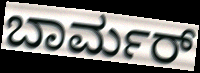
ಬಾರ್ಮರ್